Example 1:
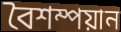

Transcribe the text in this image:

বৈশম্পয়ান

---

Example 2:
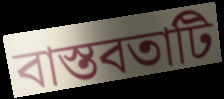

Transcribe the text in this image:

বাস্তবতাটি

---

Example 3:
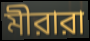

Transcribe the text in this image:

মীরারা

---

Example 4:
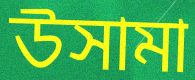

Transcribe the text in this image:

উসামা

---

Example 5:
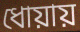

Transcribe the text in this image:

ধোয়ায়